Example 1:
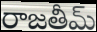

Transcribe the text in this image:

రాజతీమ్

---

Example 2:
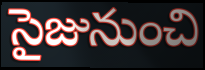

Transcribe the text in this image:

సైజునుంచి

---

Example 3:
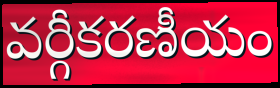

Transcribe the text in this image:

వర్గీకరణీయం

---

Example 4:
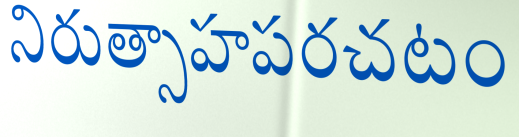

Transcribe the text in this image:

నిరుత్సాహపరచటం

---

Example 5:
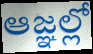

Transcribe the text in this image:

ఆజ్ఞల్లో